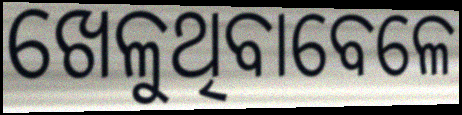
ଖେଳୁଥିବାବେଳେ